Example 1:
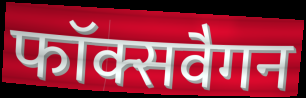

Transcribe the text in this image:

फॉक्सवैगन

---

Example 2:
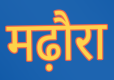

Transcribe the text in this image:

मढ़ौरा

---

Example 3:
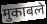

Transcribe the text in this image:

मुकाबले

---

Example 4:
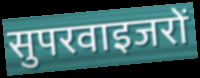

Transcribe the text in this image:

सुपरवाइजरों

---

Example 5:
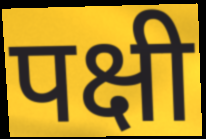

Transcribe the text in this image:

पक्षी